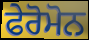
ਫੇਰੋਮੋਨ